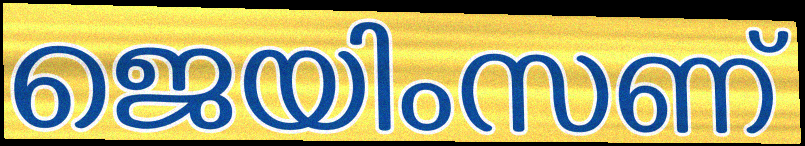
ജെയിംസണ്